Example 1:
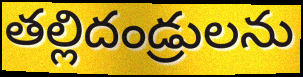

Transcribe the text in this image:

తల్లిదండ్రులను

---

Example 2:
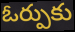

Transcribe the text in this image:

ఓర్పుకు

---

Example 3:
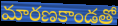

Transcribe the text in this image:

మారణకాండతో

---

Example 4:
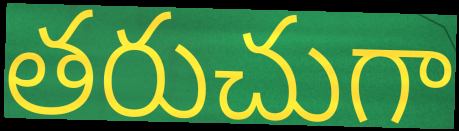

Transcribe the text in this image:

తరుచుగా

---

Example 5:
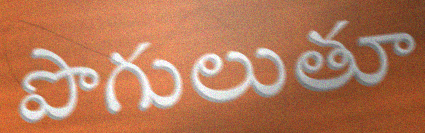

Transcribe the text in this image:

పొగులుతూ